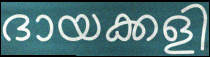
ദായക്കളി